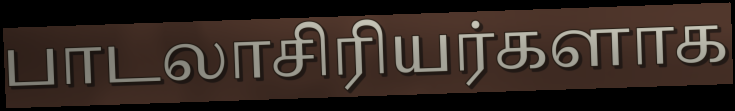
பாடலாசிரியர்களாக